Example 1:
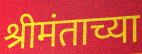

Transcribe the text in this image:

श्रीमंताच्या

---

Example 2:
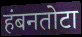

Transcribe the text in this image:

हंबनतोटा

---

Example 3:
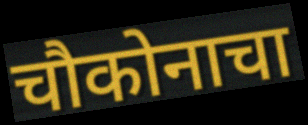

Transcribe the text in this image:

चौकोनाचा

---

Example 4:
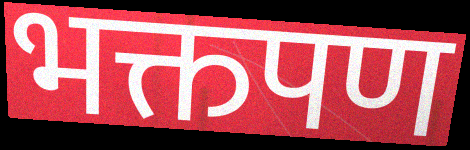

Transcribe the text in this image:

भक्तपण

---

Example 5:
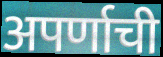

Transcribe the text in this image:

अपर्णाची